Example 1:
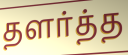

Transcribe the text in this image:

தளர்த்த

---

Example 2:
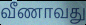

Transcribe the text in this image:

வீணாவது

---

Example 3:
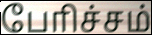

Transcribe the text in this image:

பேரிச்சம்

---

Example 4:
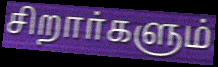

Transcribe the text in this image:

சிறார்களும்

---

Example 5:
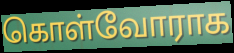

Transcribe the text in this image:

கொள்வோராக